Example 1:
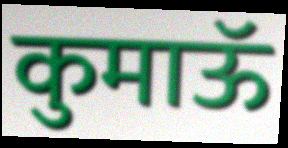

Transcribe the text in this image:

कुमाऊॅ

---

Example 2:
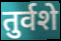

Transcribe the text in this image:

तुर्वशे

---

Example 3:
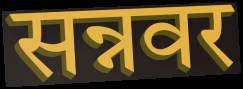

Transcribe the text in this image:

सन्नवर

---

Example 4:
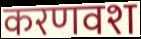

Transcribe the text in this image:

करणवश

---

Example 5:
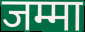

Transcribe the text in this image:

जम्मा